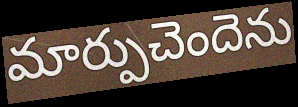
మార్పుచెందెను